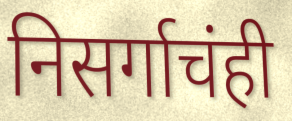
निसर्गाचंही